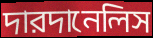
দারদানেলিস